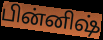
பின்னிஷ்